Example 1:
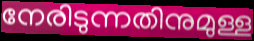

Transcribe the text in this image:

നേരിടുന്നതിനുമുള്ള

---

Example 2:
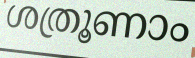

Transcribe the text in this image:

ശത്രൂണാം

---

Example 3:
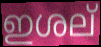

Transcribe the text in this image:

ഇശല്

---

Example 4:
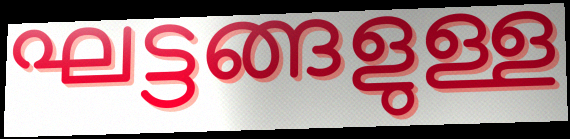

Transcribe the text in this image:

ഘട്ടങ്ങളുള്ള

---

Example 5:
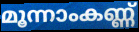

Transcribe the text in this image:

മൂന്നാംകണ്ണ്